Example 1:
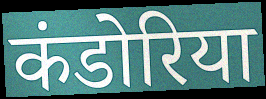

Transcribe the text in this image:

कंडोरिया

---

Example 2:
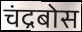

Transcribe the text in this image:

चंद्रबोस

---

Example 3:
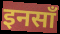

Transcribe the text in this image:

इनसाँ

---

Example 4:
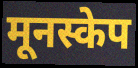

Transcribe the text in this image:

मूनस्केप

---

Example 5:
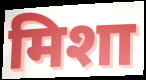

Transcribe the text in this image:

मिशा